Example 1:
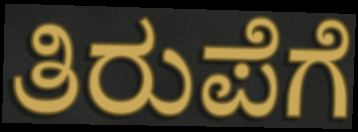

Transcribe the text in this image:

ತಿರುಪೆಗೆ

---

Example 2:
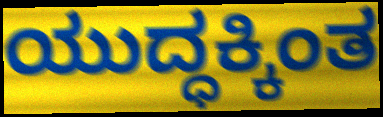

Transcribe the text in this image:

ಯುದ್ಧಕ್ಕಿಂತ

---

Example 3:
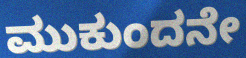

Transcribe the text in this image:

ಮುಕುಂದನೇ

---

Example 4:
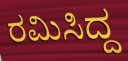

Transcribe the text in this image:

ರಮಿಸಿದ್ದ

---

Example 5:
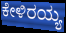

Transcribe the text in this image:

ಕೇಳಿರಯ್ಯ